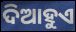
ଦିଆହୁଏ